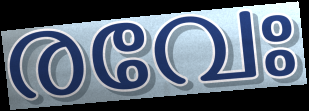
രവേഃ